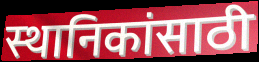
स्थानिकांसाठी